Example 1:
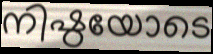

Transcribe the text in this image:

നിഷ്ഠയോടെ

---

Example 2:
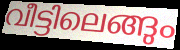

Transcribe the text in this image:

വീട്ടിലെങ്ങും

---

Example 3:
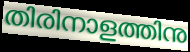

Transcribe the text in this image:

തിരിനാളത്തിനു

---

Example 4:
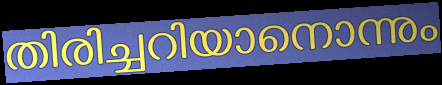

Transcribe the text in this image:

തിരിച്ചറിയാനൊന്നും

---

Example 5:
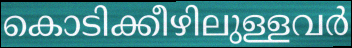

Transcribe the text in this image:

കൊടിക്കീഴിലുള്ളവർ